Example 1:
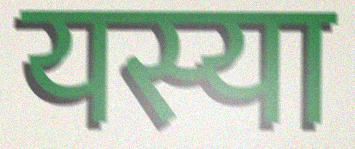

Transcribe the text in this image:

यस्या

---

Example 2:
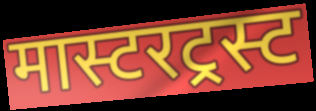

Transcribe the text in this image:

मास्टरट्रस्ट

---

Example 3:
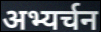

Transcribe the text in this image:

अभ्यर्चन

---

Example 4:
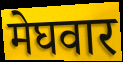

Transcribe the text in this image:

मेघवार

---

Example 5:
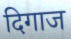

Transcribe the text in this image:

दिगाज